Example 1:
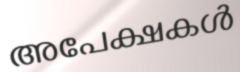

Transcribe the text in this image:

അപേക്ഷകൾ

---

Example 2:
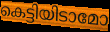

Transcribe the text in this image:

കെട്ടിയിടാമോ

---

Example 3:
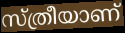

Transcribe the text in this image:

സ്ത്രീയാണ്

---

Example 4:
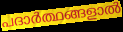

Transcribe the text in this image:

പദാർത്ഥങ്ങളാൽ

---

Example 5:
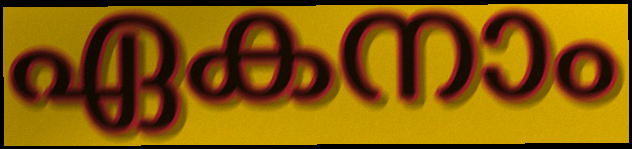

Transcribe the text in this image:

ഏകനാം